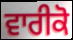
ਵਾਰੀਕੋ